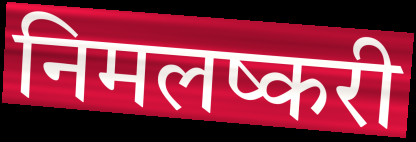
निमलष्करी